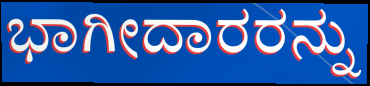
ಭಾಗೀದಾರರನ್ನು